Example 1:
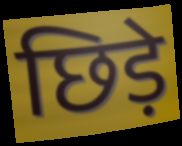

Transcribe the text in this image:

छिड़े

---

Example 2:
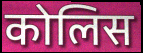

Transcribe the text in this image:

कोलिस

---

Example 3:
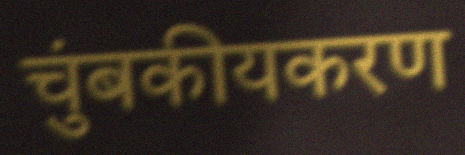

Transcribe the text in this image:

चुंबकीयकरण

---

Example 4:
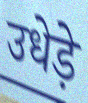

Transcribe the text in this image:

उधेड़े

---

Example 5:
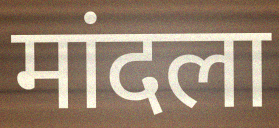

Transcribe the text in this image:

मांदला